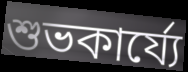
শুভকার্য্যে